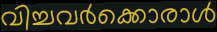
വിച്ചവർക്കൊരാൾ